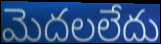
మెదలలేదు